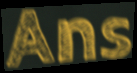
Ans